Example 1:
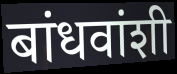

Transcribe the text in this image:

बांधवांशी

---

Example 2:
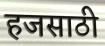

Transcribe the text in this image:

हजसाठी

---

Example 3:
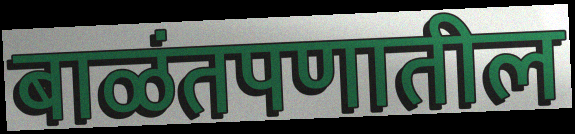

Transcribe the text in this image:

बाळंतपणातील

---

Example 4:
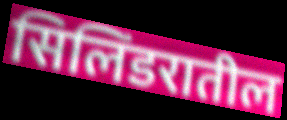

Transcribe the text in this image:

सिलिंडरातील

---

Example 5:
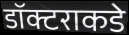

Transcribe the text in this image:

डॉक्टराकडे